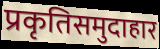
प्रकृतिसमुदाहार